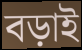
বড়াই